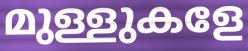
മുള്ളുകളേ